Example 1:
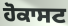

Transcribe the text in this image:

ਹੋਕਾਸਟ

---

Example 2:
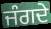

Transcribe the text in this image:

ਜੰਗਦੇ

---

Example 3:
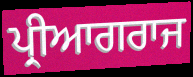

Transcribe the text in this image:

ਪ੍ਰੀਆਗਰਾਜ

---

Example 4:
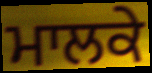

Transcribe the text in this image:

ਮਾਲਕੇ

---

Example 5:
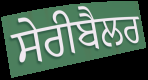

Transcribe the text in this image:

ਸੇਰੀਬੈਲਰ